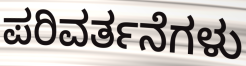
ಪರಿವರ್ತನೆಗಳು